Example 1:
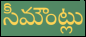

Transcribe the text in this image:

సీమౌంట్లు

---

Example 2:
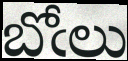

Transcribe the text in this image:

బోఁలు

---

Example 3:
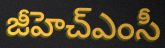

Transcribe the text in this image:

జీహెచ్ఎంసీ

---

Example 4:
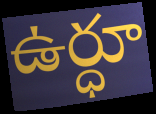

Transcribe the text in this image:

ఉర్ధూ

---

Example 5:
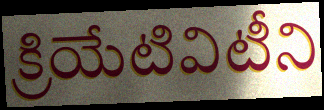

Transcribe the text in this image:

క్రియేటివిటీని